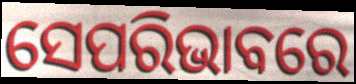
ସେପରିଭାବରେ